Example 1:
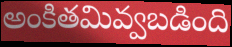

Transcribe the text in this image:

అంకితమివ్వబడింది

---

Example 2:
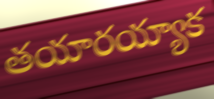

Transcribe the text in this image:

తయారయ్యాక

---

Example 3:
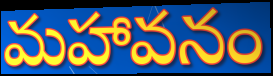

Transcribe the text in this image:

మహావనం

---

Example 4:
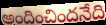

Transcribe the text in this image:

అందించిందనేది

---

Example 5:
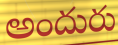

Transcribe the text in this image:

అందురు